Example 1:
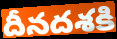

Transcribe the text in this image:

దీనదశకి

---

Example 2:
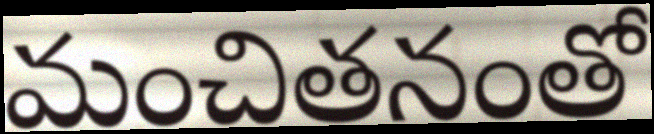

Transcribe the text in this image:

మంచితనంతో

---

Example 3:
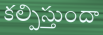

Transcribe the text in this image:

కల్పిస్తుందా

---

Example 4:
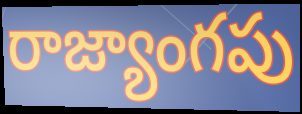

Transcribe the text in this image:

రాజ్యాంగపు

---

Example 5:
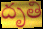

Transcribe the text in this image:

దృతి